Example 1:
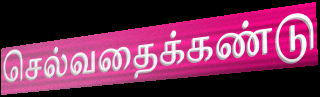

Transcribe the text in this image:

செல்வதைக்கண்டு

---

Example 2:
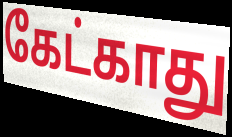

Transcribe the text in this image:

கேட்காது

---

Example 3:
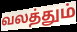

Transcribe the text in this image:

வலத்தும்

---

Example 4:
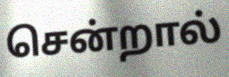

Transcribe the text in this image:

சென்றால்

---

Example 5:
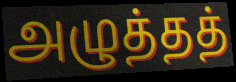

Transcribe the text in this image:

அழுத்தத்